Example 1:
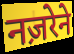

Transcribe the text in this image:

नज़रेने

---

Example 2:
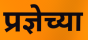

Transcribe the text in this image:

प्रज्ञेच्या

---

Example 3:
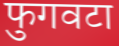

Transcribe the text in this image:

फुगवटा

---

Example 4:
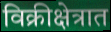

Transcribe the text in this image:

विक्रीक्षेत्रात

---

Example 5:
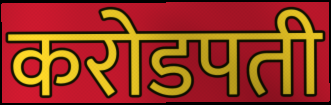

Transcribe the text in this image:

करोडपती